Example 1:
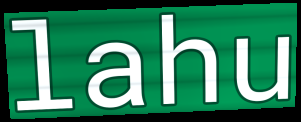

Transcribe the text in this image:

lahu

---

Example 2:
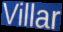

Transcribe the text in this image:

Villar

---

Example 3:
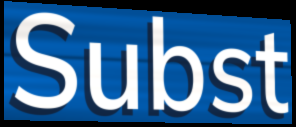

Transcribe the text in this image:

Subst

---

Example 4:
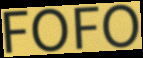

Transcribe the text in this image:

FOFO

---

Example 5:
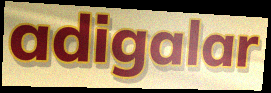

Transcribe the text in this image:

adigalar